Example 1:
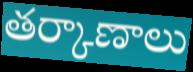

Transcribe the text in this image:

తర్కాణాలు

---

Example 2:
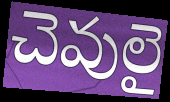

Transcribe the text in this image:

చెవులై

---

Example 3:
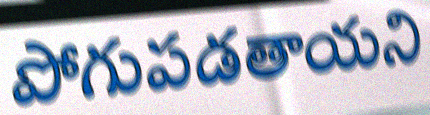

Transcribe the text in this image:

పోగుపడతాయని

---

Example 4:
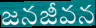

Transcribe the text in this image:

జనజీవన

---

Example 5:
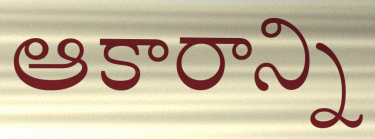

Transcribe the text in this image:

ఆకారాన్ని